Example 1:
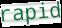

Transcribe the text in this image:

rapid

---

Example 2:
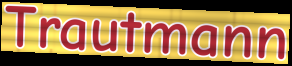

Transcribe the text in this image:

Trautmann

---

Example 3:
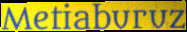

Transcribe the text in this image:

Metiaburuz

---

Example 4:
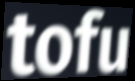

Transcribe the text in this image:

tofu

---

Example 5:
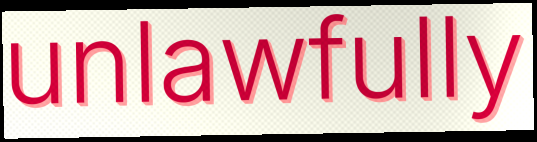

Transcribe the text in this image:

unlawfully